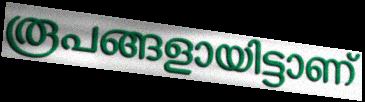
രൂപങ്ങളായിട്ടാണ്